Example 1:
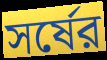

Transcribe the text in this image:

সর্ষের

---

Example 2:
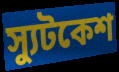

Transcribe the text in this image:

স্যুটকেশ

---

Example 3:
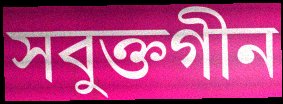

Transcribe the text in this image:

সবুক্তগীন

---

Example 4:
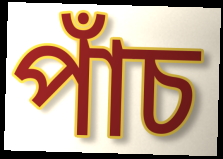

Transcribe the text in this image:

পাঁচ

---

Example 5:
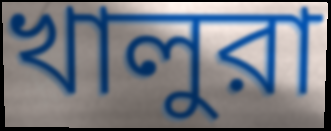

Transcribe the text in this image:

খালুরা